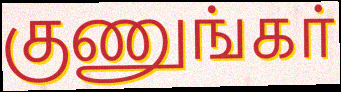
குணுங்கர்